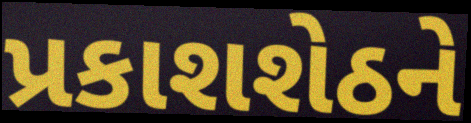
પ્રકાશશેઠને